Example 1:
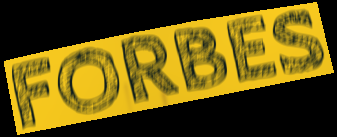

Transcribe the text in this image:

FORBES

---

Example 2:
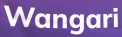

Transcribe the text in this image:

Wangari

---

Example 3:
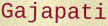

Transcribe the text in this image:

Gajapati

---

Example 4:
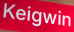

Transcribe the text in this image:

Keigwin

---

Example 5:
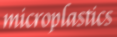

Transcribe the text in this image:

microplastics